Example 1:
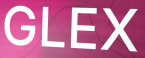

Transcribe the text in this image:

GLEX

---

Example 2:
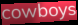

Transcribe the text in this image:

cowboys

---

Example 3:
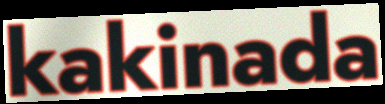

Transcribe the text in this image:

kakinada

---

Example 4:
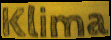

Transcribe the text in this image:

Klima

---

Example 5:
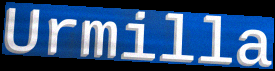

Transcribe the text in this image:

Urmilla